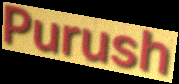
Purush